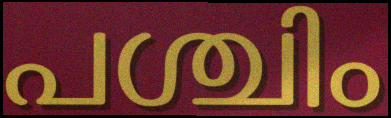
പശ്ചിം